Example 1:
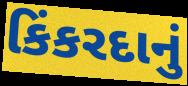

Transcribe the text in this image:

કિંકરદાનું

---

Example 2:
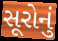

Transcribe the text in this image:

સૂરોનું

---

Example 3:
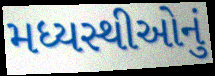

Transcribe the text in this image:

મધ્યસ્થીઓનું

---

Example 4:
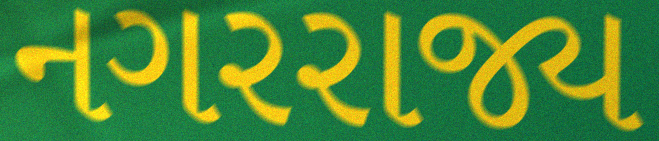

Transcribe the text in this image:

નગરરાજ્ય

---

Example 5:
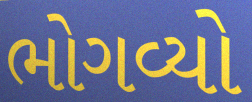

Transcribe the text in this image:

ભોગવ્યો